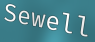
Sewell